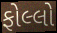
ફોલ્લો